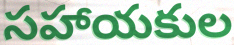
సహాయకుల